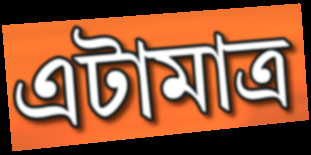
এটামাত্ৰ